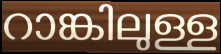
റാങ്കിലുള്ള